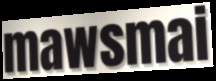
mawsmai